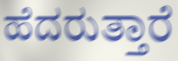
ಹೆದರುತ್ತಾರೆ